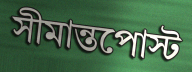
সীমান্তপোস্ট